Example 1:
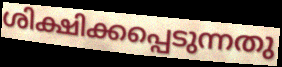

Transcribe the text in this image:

ശിക്ഷിക്കപ്പെടുന്നതു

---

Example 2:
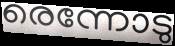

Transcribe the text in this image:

രെന്നോടു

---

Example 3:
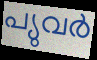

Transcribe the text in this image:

പ്യുവർ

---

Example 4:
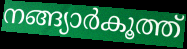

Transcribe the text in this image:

നങ്ങ്യാർകൂത്ത്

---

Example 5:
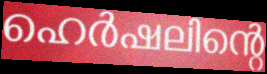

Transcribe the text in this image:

ഹെർഷലിന്റെ